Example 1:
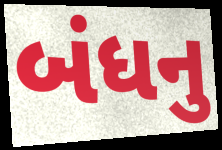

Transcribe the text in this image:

બંધનુ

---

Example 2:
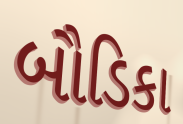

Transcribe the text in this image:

બૌડિકા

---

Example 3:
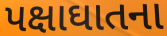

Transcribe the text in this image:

પક્ષાઘાતના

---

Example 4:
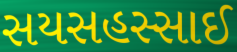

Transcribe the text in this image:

સયસહસ્સાઈ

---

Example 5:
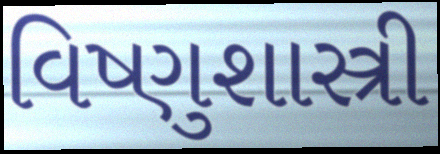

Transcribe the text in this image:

વિષ્ણુશાસ્ત્રી